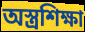
অস্ত্রশিক্ষা